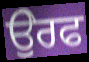
ਉੇਰਫ